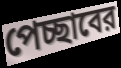
পেচ্ছাবের